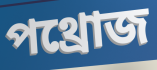
পথ্রোজ